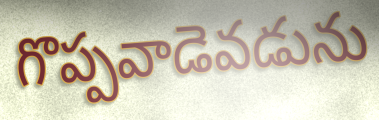
గొప్పవాడెవడును